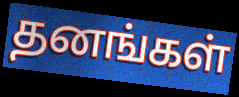
தனங்கள்